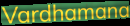
Vardhamana